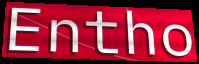
Entho